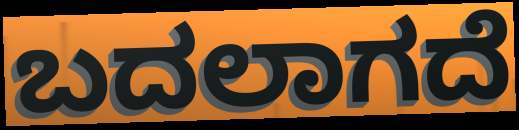
ಬದಲಾಗದೆ